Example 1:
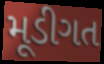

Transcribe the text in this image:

મૂડીગત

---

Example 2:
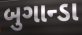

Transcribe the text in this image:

બુગાન્ડા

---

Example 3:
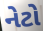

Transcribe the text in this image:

નેટો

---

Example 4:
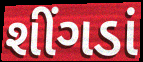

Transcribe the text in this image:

શીંગડાં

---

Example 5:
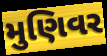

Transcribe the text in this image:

મુણિવર